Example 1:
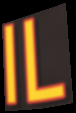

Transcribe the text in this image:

IL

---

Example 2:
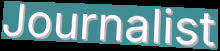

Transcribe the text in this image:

Journalist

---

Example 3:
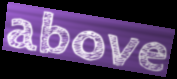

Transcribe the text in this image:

above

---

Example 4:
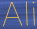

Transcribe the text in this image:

Ali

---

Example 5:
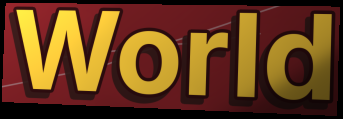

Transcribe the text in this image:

World